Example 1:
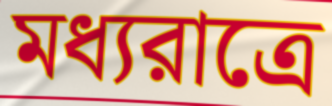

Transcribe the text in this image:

মধ্যরাত্রে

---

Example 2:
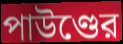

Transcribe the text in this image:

পাউণ্ডের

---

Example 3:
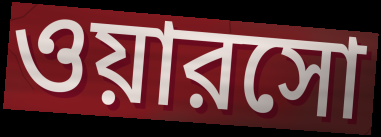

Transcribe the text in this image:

ওয়ারসো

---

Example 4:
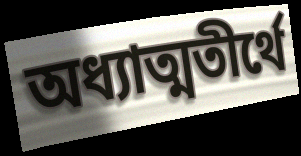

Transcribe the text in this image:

অধ্যাত্মতীর্থে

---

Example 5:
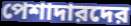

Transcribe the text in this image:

পেশাদারদের